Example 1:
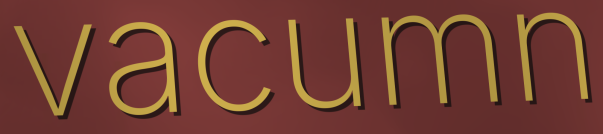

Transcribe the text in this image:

vacumn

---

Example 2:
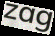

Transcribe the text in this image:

zag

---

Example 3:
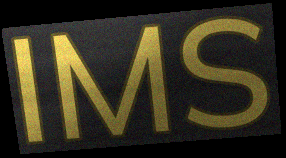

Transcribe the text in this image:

IMS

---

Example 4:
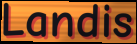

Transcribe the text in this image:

Landis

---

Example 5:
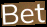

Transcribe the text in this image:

Bet